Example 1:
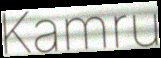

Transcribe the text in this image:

Kamru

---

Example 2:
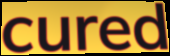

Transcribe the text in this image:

cured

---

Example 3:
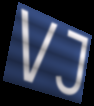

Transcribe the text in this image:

VJ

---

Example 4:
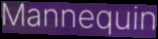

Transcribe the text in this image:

Mannequin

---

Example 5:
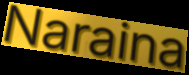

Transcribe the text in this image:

Naraina